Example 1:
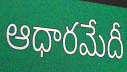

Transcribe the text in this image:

ఆధారమేదీ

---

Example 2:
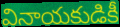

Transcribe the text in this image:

వినాయకుడికీ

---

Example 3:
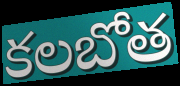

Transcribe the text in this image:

కలబోత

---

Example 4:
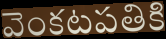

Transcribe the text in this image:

వెంకటపతికి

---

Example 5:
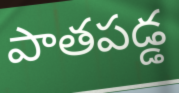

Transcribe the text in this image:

పాతపడ్డ